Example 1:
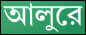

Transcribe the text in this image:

আলুরে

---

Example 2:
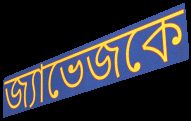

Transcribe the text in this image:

জ্যাভেজকে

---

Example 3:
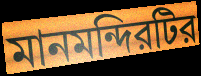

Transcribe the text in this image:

মানমন্দিরটির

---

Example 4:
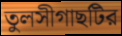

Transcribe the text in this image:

তুলসীগাছটির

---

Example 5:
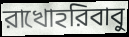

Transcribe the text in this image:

রাখোহরিবাবু